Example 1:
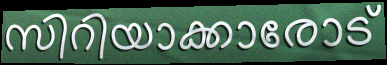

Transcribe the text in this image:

സിറിയാക്കാരോട്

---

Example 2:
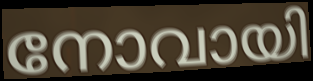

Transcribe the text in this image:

നോവായി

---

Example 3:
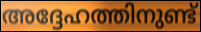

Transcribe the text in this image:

അദ്ദേഹത്തിനുണ്ട്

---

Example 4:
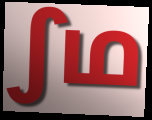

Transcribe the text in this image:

ഽഥ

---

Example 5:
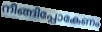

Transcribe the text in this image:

നീങ്ങിപ്പോകേണം